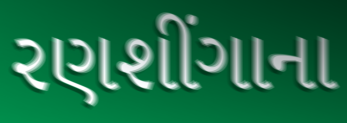
રણશીંગાના